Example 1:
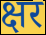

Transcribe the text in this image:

क्षर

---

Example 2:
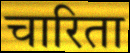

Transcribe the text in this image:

चारिता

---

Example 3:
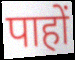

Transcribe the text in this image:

पाहों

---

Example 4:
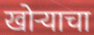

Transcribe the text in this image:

खोर्‍याचा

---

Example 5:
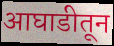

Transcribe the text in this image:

आघाडीतून